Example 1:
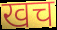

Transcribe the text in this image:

खच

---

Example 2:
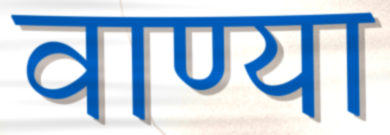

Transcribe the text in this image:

वाण्या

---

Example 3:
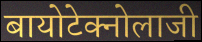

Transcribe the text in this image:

बायोटेक्नोलाजी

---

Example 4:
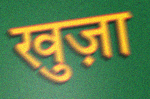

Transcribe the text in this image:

खुज़ा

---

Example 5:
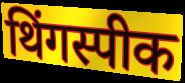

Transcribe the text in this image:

थिंगस्पीक